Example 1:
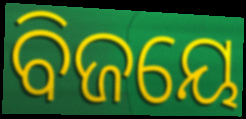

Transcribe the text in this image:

ବିଜୟେ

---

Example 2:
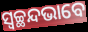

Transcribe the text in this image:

ସ୍ୱଚ୍ଛନ୍ଦଭାବେ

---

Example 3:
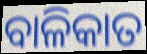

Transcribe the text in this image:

ବାଳିକାତ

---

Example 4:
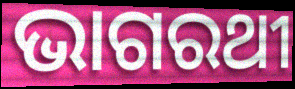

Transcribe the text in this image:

ଭାଗରଥୀ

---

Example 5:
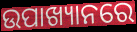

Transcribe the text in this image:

ଉପାଖ୍ୟାନରେ